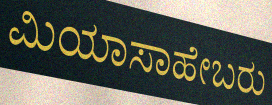
ಮಿಯಾಸಾಹೇಬರು